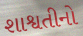
શાશ્વતીનો